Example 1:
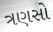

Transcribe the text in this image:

ત્રણસો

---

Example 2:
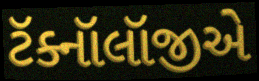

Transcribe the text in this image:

ટૅક્નૉલૉજીએ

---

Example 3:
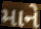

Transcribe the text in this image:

માને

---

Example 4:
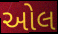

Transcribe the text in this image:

ઓલ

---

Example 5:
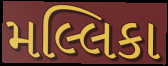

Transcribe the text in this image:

મલ્લિકા